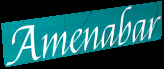
Amenabar